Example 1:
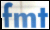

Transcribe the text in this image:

fmt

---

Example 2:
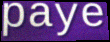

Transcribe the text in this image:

paye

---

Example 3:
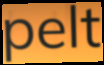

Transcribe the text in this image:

pelt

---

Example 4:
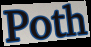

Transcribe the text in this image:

Poth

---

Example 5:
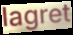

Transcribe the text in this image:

lagret